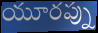
యూరప్ను